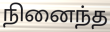
நினைந்த